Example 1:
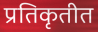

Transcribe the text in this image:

प्रतिकृतीत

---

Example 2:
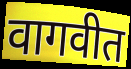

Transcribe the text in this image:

वागवीत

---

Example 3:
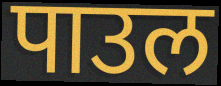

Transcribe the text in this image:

पाउल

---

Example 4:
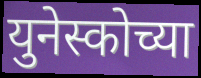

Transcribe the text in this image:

युनेस्कोच्या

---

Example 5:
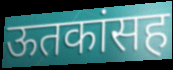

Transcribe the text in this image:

ऊतकांसह